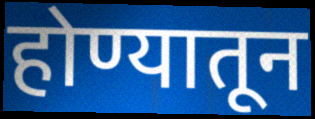
होण्यातून